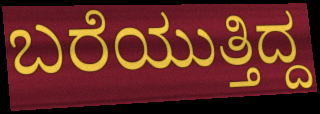
ಬರೆಯುತ್ತಿದ್ದ